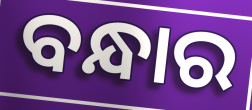
ବନ୍ଧାର